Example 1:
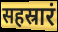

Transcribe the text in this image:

सहस्रारं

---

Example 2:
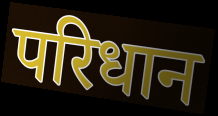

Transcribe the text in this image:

परिधान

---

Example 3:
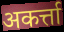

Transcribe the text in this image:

अकर्त्ता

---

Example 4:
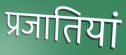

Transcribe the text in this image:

प्रजातियां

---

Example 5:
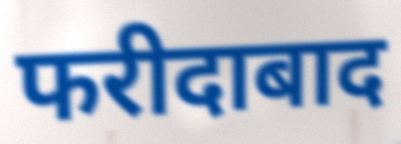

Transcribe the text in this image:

फरीदाबाद